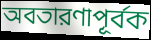
অবতারণাপূর্বক